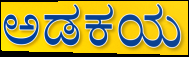
ಅಡಕಯ